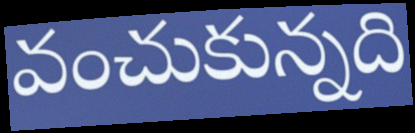
వంచుకున్నది